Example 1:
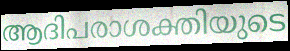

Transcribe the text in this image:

ആദിപരാശക്തിയുടെ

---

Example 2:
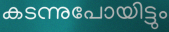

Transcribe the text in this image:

കടന്നുപോയിട്ടും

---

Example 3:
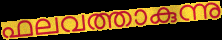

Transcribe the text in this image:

ഫലവത്താകുന്നു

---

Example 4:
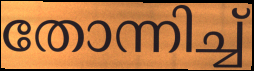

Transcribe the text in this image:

തോന്നിച്ച്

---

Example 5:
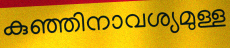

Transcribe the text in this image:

കുഞ്ഞിനാവശ്യമുള്ള